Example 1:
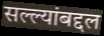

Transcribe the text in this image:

सल्ल्यांबद्दल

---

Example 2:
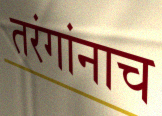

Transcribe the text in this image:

तरंगांनाच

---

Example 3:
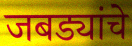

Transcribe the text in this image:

जबड्यांचे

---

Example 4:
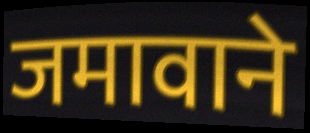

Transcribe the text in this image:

जमावाने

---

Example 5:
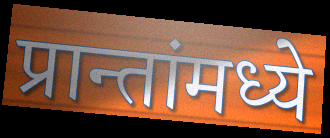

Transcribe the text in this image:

प्रान्तांमध्ये